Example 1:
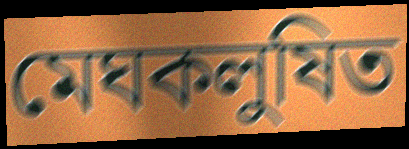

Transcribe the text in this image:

মেঘকলুষিত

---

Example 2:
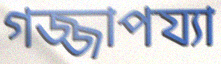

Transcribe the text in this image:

গজ্জাপয্যা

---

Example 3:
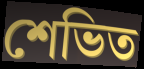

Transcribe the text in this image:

শেভিত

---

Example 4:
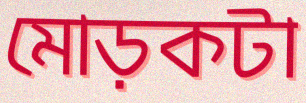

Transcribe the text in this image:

মোড়কটা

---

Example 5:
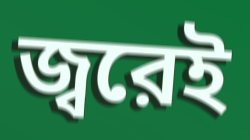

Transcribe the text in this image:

জ্বরেই